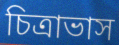
চিত্রাভাস